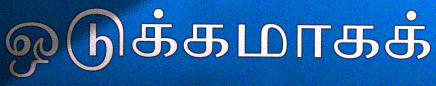
ஒடுக்கமாகக்